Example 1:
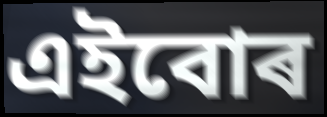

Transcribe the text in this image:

এইবোৰ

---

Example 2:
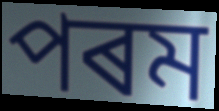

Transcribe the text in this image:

পৰম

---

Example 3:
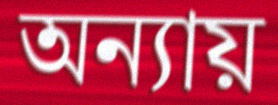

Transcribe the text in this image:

অন্যায়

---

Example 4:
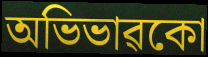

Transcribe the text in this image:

অভিভাৱকো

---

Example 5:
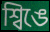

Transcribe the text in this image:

শ্বিঙে